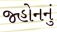
જ્હોનનું